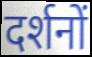
दर्शनों